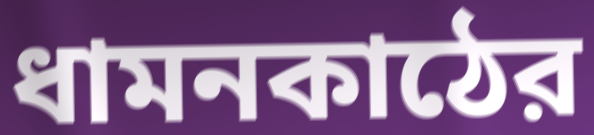
ধামনকাঠের